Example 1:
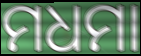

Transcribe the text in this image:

ମଧମା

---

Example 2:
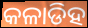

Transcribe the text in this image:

କଳାଡିହ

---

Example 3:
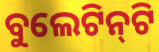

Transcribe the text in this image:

ବୁଲେଟିନ୍‍ଟି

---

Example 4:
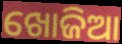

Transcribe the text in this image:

ଖୋଜିଆ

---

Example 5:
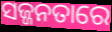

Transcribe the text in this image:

ସଜ୍ଜନତାରେ